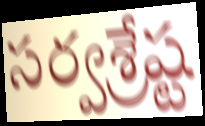
సర్వశ్రేష్ట